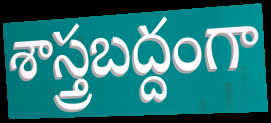
శాస్త్రబద్దంగా